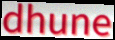
dhune